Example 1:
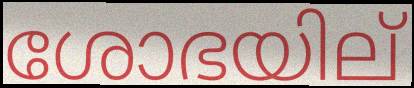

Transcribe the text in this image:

ശോഭയില്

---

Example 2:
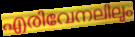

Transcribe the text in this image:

എരിവേനലിലും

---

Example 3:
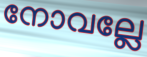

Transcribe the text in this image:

നോവല്ലേ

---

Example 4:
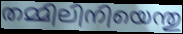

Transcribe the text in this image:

തമ്മിലിനിയെന്തു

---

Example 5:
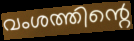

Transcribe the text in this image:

വംശത്തിന്റെ